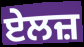
ਏਲਜ਼